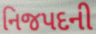
નિજપદની